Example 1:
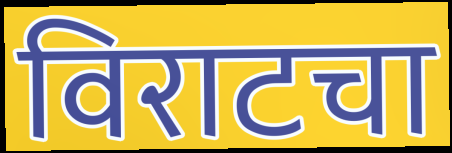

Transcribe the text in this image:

विराटचा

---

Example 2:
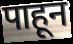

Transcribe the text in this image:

पाहून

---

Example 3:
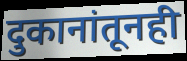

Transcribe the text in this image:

दुकानांतूनही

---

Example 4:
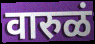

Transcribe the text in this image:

वारुळं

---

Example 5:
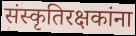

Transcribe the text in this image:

संस्कृतिरक्षकांना